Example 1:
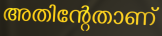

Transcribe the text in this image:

അതിന്റേതാണ്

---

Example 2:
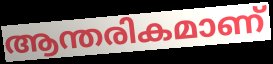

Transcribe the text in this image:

ആന്തരികമാണ്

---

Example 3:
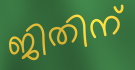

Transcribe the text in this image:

ജിതിന്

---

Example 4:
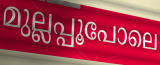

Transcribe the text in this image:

മുല്ലപ്പൂപോലെ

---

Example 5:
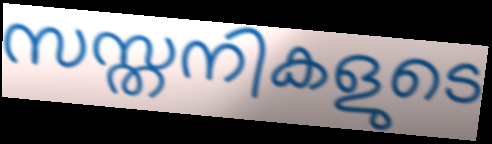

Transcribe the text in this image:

സസ്തനികളുടെ